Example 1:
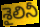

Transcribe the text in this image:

శైలినీ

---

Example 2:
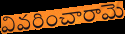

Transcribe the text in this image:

వివరించారామె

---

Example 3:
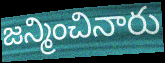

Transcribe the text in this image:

జన్మించినారు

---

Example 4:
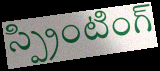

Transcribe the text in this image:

స్ప్రింటింగ్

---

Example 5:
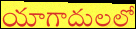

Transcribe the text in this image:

యాగాదులలో